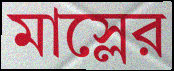
মাস্লের